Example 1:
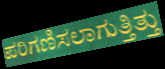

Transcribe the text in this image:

ಪರಿಗಣಿಸಲಾಗುತ್ತಿತ್ತು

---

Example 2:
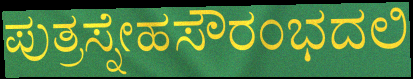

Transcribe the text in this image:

ಪುತ್ರಸ್ನೇಹಸೌರಂಭದಲಿ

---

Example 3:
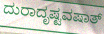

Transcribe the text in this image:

ದುರಾದೃಷ್ಟವಷಾತ್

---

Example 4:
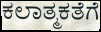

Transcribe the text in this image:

ಕಲಾತ್ಮಕತೆಗೆ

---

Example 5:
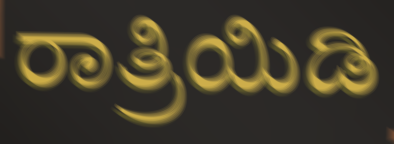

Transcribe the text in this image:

ರಾತ್ರಿಯಿಡಿ